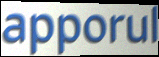
apporul